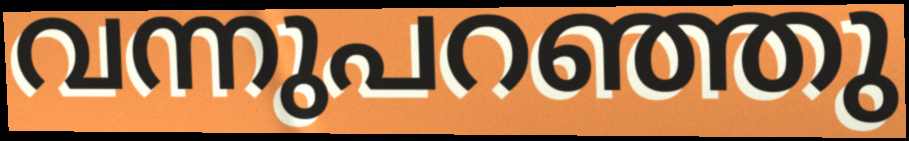
വന്നുപറഞ്ഞു